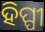
ହିପ୍ପୀ